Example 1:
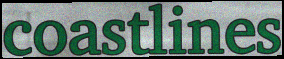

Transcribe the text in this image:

coastlines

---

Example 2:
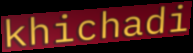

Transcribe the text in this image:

khichadi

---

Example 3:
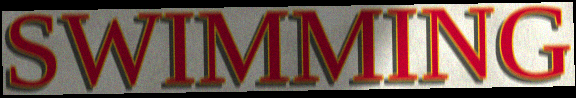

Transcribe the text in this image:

SWIMMING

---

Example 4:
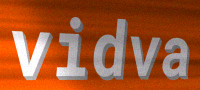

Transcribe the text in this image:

vidva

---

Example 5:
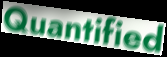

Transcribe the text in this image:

Quantified